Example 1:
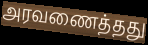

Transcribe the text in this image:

அரவணைத்தது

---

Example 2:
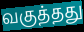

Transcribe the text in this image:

வகுத்தது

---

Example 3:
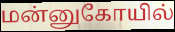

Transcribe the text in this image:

மன்னுகோயில்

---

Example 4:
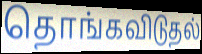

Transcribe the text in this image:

தொங்கவிடுதல்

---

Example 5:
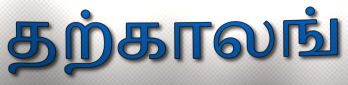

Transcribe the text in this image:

தற்காலங்